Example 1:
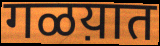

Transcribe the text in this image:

गळय़ात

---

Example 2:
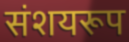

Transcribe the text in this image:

संशयरूप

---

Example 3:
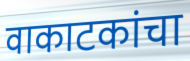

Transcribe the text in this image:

वाकाटकांचा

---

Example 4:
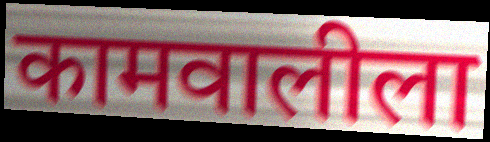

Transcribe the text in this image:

कामवालीला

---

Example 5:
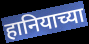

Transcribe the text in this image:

हानियाच्या